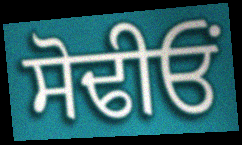
ਸੋਢੀਓਂ